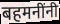
बहमनींनी